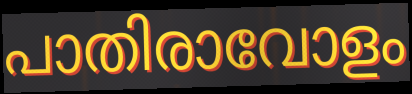
പാതിരാവോളം